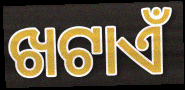
ଖଟାଏଁ